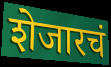
शेजारचं